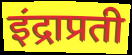
इंद्राप्रती